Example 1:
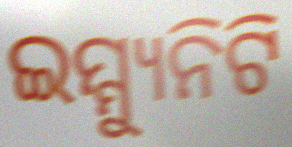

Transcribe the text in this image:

ଇମ୍ମ୍ୟୁନିଟି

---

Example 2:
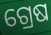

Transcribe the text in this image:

ଗ୍ରେଷ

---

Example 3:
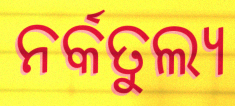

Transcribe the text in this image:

ନର୍କତୁଲ୍ୟ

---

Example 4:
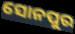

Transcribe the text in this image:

ସୋନପୁର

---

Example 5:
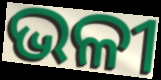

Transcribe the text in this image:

ଭଳୀ